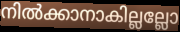
നിൽക്കാനാകില്ലല്ലോ